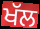
ਖੱਲ